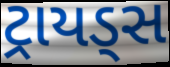
ટ્રાયડ્સ